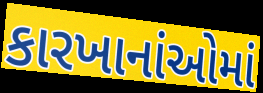
કારખાનાંઓમાં